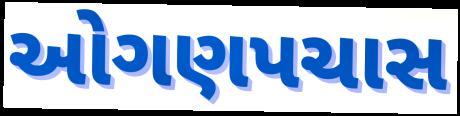
ઓગણપચાસ